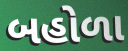
બહોળા